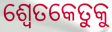
ଶ୍ୱେତକେତୁକୁ